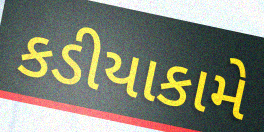
કડીયાકામે